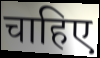
चाहिए